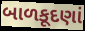
બાળકૂદણાં